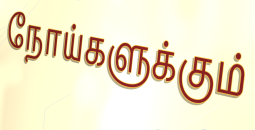
நோய்களுக்கும்